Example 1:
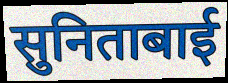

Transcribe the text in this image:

सुनिताबाई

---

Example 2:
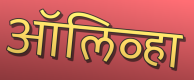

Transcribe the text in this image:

ऑलिव्हा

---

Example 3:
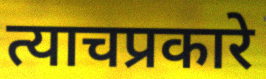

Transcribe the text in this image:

त्याचप्रकारे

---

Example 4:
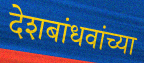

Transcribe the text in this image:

देशबांधवांच्या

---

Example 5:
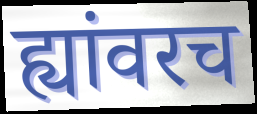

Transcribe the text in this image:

ह्यांवरच